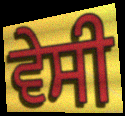
ਵੇਸੀ